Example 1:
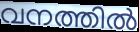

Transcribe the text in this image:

വനത്തിൽ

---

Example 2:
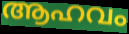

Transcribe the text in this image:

ആഹവം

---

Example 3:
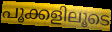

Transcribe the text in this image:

പൂക്കളിലൂടെ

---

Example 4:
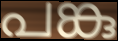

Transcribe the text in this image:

പങ്കു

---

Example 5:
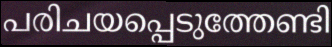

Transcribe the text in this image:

പരിചയപ്പെടുത്തേണ്ടി